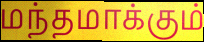
மந்தமாக்கும்